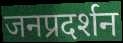
जनप्रदर्शन